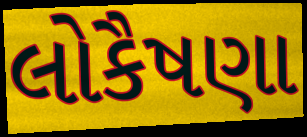
લોકૈષણા